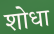
शोधा